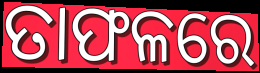
ତାଫଳରେ